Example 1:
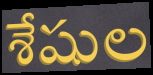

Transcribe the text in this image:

శేషుల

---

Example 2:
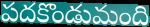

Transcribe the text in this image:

పదకొండుమంది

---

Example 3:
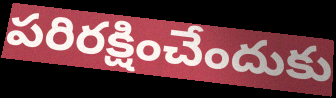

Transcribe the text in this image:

పరిరక్షించేందుకు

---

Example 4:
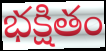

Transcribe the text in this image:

భక్షితం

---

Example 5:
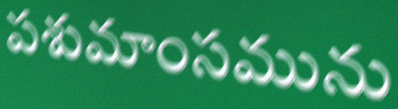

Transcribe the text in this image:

పశుమాంసమును